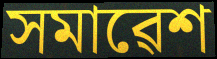
সমাৱেশ